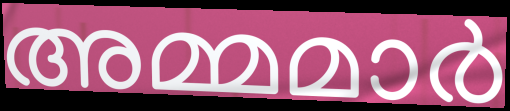
അമ്മമാർ